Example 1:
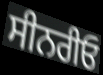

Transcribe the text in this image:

ਸੀਨਰੀਓ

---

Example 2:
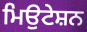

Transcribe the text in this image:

ਮਿਉਟੇਸ਼ਨ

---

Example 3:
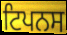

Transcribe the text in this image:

ਟਿਪਨਸ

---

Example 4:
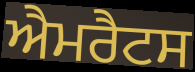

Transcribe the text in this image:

ਐਮਰੈਟਸ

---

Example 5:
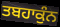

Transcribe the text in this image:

ਤਬਹਾਕੁੰਨ